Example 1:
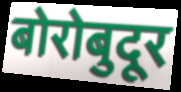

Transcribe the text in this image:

बोरोबुदूर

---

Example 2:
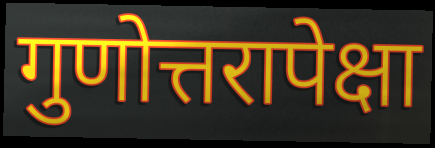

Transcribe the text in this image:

गुणोत्तरापेक्षा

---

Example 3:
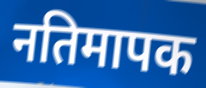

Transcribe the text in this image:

नतिमापक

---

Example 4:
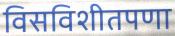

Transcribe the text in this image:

विसविशीतपणा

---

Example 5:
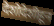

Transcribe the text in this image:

देशोदेशीहून